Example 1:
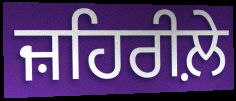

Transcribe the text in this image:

ਜ਼ਹਿਰੀਲ਼ੇ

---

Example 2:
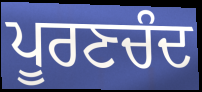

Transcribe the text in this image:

ਪੂਰਣਚੰਦ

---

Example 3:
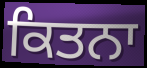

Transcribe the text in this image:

ਕਿਤਨਾ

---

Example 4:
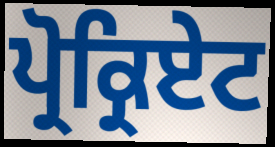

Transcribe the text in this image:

ਪ੍ਰੋਕ੍ਰਿਏਟ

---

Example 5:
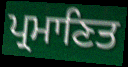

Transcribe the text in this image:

ਪ੍ਰਮਾਣਿਤ